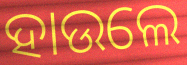
ହାଉଲେ